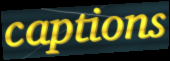
captions